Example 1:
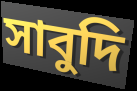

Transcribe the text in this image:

সাবুদি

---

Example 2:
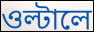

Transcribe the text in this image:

ওল্টালে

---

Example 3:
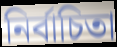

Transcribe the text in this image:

নির্বাচিতা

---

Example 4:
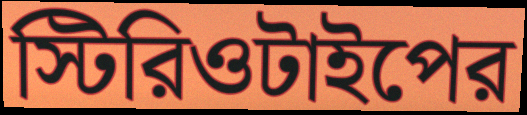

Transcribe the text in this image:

স্টিরিওটাইপের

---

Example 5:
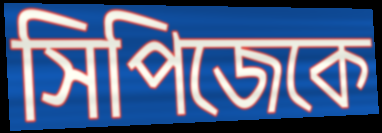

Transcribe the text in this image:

সিপিজেকে